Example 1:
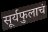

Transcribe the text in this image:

सूर्यफुलाचं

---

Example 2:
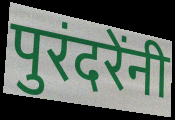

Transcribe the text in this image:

पुरंदरेंनी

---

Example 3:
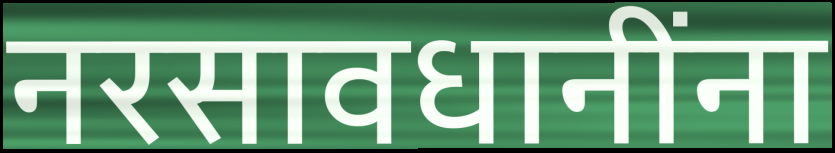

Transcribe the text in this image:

नरसावधानींना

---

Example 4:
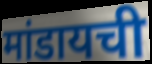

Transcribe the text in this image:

मांडायची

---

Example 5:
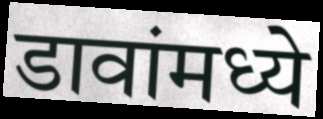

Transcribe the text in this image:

डावांमध्ये